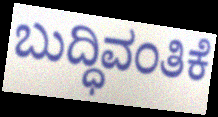
ಬುದ್ಧಿವಂತಿಕೆ